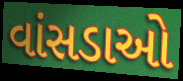
વાંસડાઓ